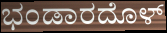
ಭಂಡಾರದೊಳ್